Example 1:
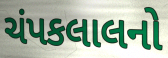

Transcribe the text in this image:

ચંપકલાલનો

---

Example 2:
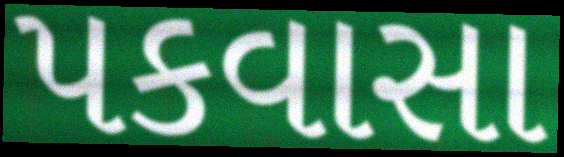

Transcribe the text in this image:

પકવાસા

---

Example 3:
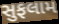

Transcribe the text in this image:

સુફલામ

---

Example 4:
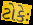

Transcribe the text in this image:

ટોકેઃ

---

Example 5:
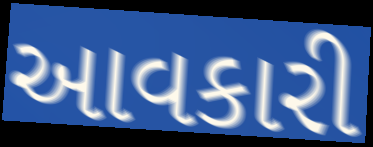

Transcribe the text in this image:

આવકારી